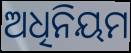
ଅଧିନିୟମ